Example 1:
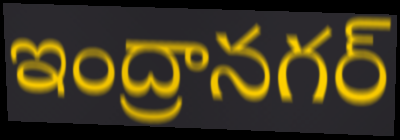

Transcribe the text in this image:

ఇంద్రానగర్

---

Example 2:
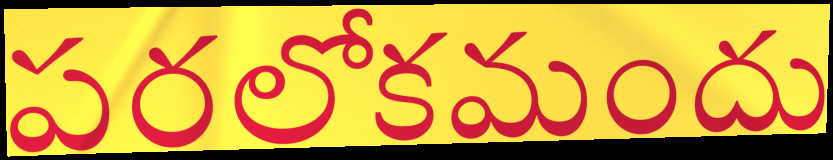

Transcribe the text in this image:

పరలోకమందు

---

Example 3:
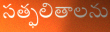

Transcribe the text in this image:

సత్ఫలితాలను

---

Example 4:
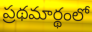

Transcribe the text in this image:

ప్రథమార్థంలో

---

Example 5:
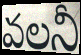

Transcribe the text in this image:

వలనీ